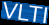
VLTI